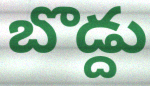
బొడ్దు